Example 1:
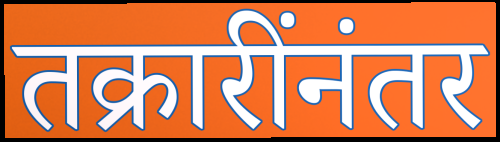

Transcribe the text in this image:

तक्रारींनंतर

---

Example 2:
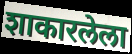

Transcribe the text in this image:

शाकारलेला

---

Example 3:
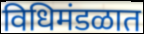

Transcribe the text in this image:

विधिमंडळात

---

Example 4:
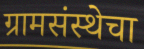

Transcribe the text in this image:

ग्रामसंस्थेचा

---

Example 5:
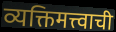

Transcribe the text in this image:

व्यक्तिमत्त्वाची